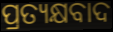
ପ୍ରତ୍ୟକ୍ଷବାଦ